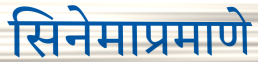
सिनेमाप्रमाणे